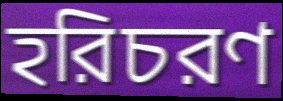
হরিচরণ